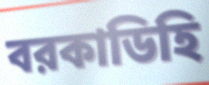
বরকাডিহি